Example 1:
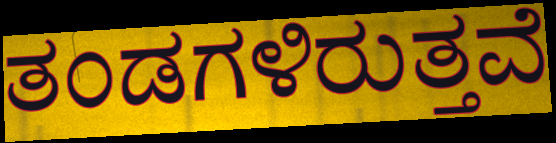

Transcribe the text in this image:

ತಂಡಗಳಿರುತ್ತವೆ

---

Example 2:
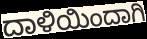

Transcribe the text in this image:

ದಾಳಿಯಿಂದಾಗಿ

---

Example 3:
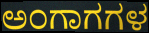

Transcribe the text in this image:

ಅಂಗಾಗಗಳ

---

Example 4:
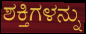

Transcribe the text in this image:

ಶಕ್ತಿಗಳನ್ನು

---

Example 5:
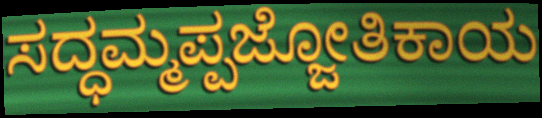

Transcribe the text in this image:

ಸದ್ಧಮ್ಮಪ್ಪಜ್ಜೋತಿಕಾಯ